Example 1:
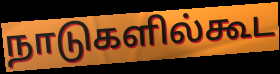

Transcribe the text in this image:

நாடுகளில்கூட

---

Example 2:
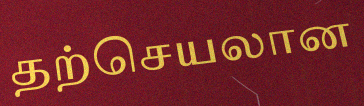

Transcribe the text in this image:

தற்செயலான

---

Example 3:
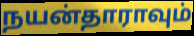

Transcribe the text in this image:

நயன்தாராவும்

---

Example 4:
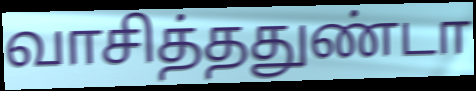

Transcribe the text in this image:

வாசித்ததுண்டா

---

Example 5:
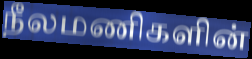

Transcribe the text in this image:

நீலமணிகளின்